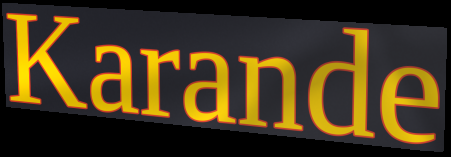
Karande